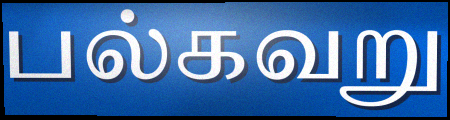
பல்கவறு